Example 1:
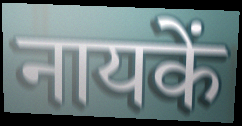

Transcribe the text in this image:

नायकें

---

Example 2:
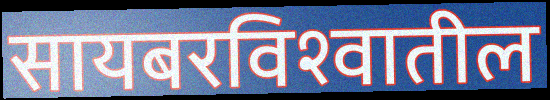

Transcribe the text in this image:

सायबरविश्वातील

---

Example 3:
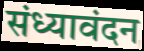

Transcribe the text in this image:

संध्यावंदन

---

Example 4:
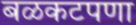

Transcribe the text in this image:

बळकटपणा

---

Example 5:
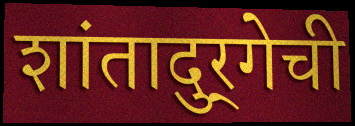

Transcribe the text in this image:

शांतादुर्गेची